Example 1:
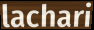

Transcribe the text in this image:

lachari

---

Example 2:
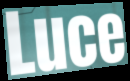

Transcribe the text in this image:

Luce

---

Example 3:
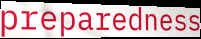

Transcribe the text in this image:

preparedness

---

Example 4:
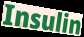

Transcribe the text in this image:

Insulin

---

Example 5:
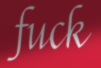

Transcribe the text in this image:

fuck